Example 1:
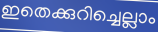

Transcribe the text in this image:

ഇതെക്കുറിച്ചെല്ലാം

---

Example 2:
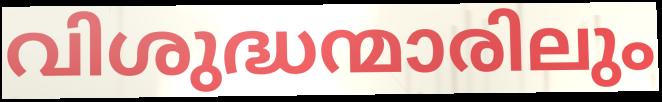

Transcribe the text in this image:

വിശുദ്ധന്മാരിലും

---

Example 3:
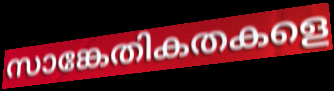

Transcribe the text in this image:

സാങ്കേതികതകളെ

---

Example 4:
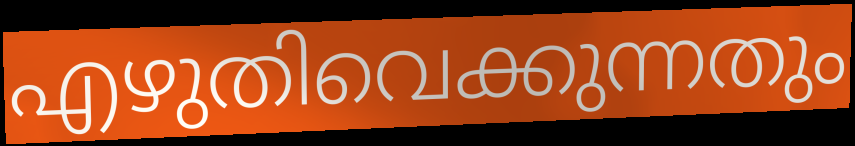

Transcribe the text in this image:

എഴുതിവെക്കുന്നതും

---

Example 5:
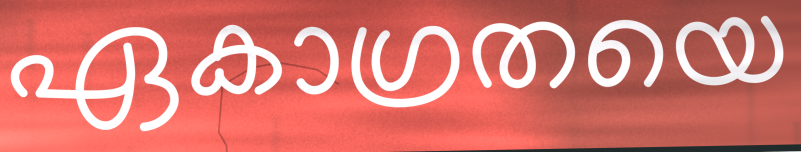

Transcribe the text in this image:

ഏകാഗ്രതയെ